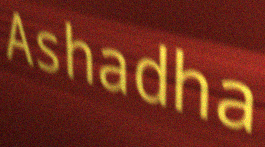
Ashadha